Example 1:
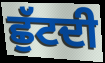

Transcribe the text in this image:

ਛੁੱਟਦੀ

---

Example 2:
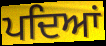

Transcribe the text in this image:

ਪਦਿਆਂ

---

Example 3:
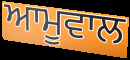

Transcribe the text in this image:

ਆਮੂਵਾਲ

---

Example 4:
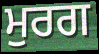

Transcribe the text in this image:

ਮੁਰਗ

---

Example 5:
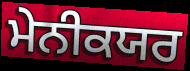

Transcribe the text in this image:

ਮੇਨੀਕਯਰ